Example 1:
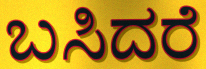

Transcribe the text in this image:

ಬಸಿದರೆ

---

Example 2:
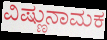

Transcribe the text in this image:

ವಿಷ್ಣುನಾಮಕ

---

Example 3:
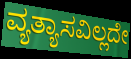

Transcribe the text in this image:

ವ್ಯತ್ಯಾಸವಿಲ್ಲದೇ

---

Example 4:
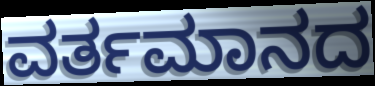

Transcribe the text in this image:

ವರ್ತಮಾನದ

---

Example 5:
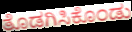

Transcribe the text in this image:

ತೊಡಗಿಸಿಕೊಂಡು